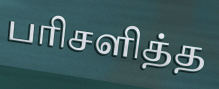
பரிசளித்த